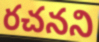
రచనని